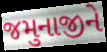
જમુનાજીને